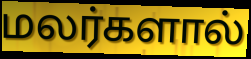
மலர்களால்